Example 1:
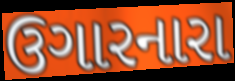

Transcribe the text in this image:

ઉગારનારા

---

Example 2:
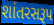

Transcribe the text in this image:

શાંતરસરૂપ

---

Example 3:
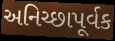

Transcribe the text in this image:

અનિચ્છાપૂર્વક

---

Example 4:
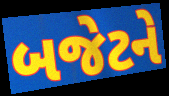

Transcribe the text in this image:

બજેટને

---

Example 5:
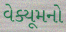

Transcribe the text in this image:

વેક્યૂમનો